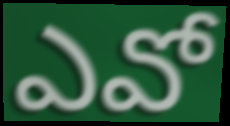
ఎవో